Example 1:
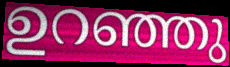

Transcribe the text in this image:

ഉറഞ്ഞു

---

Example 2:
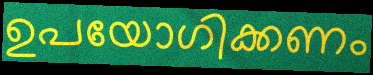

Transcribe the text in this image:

ഉപയോഗിക്കണം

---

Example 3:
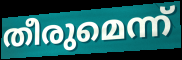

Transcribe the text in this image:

തീരുമെന്ന്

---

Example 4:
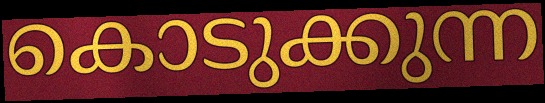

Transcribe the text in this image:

കൊടുക്കുന്ന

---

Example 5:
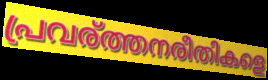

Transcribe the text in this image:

പ്രവര്ത്തനരീതികളെ